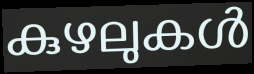
കുഴലുകൾ